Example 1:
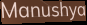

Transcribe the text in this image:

Manushya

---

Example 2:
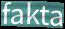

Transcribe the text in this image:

fakta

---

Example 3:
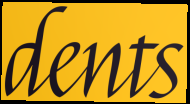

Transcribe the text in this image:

dents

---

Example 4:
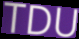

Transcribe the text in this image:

TDU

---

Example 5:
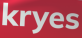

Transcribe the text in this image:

kryes